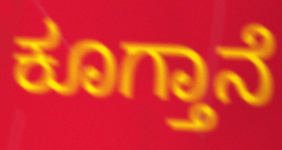
ಕೂಗ್ತಾನೆ